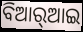
ବିଆର୍‌ଆଇ